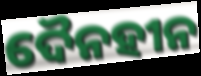
ଦୈନହୀନ